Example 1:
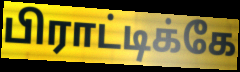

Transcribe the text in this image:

பிராட்டிக்கே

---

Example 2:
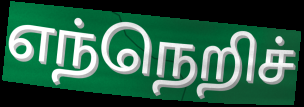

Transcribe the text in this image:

எந்நெறிச்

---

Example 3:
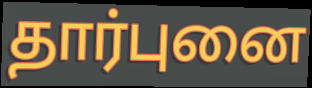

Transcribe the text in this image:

தார்புனை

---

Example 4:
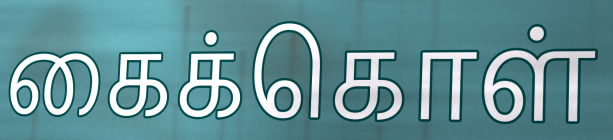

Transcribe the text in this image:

கைக்கொள்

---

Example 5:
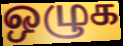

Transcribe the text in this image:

ஒழுக